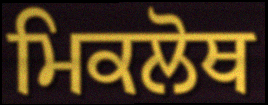
ਮਿਕਲੋਥ